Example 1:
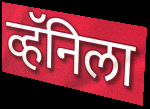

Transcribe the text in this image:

व्हॅनिला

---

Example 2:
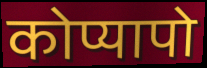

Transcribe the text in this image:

कोप्यापो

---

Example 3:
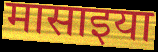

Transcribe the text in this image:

मासाइया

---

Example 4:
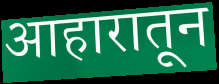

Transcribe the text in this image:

आहारातून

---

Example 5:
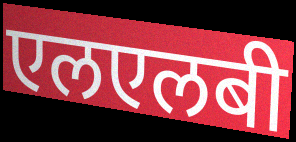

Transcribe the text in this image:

एलएलबी